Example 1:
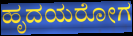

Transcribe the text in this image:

ಹೃದಯರೋಗ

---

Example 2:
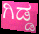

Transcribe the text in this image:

ಗಿಡ್ಡ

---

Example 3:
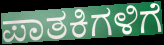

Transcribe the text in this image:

ಪಾತಕಿಗಳಿಗೆ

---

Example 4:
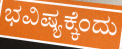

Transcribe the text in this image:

ಭವಿಷ್ಯಕ್ಕೆಂದು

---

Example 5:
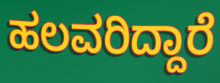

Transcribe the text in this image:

ಹಲವರಿದ್ದಾರೆ